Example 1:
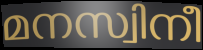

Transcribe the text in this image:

മനസ്വിനീ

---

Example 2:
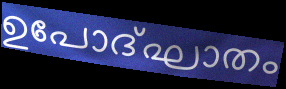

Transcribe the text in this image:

ഉപോദ്ഘാതം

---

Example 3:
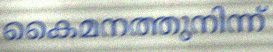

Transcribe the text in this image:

കൈമനത്തുനിന്ന്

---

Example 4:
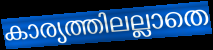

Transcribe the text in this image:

കാര്യത്തിലല്ലാതെ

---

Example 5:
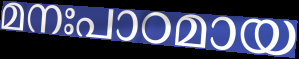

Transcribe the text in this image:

മനഃപാഠമായ